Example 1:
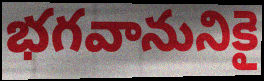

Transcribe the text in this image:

భగవానునికై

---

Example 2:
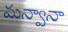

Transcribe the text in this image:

మన్వానా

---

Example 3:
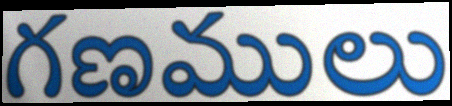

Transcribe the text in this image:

గణములు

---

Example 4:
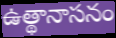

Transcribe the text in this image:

ఉత్థానాసనం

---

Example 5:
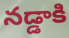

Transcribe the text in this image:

నడ్డాకి